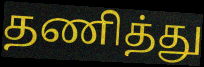
தணித்து